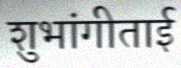
शुभांगीताई